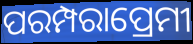
ପରମ୍ପରାପ୍ରେମୀ